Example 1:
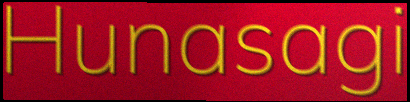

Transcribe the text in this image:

Hunasagi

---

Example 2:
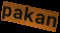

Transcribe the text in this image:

pakan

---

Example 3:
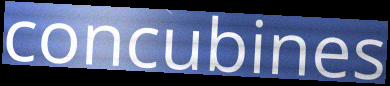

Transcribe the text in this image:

concubines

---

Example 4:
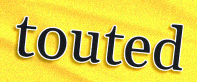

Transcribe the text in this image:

touted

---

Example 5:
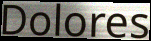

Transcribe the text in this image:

Dolores